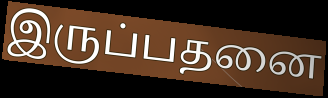
இருப்பதனை